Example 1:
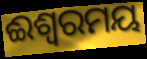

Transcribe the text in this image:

ଈଶ୍ଵରମୟ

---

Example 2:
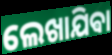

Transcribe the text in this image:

ଲେଖାଯିଵା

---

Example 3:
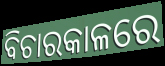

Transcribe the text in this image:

ବିଚାରକାଳରେ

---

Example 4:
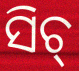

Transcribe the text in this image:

ସିଚ୍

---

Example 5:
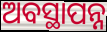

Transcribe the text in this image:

ଅବସ୍ଥାପନ୍ନ